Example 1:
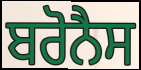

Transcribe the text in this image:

ਬਰੋਨੈਸ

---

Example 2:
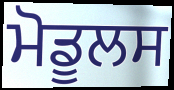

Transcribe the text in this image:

ਮੋਡੂਲਸ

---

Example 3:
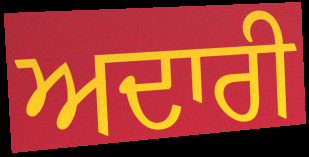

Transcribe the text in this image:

ਅਦਾਰੀ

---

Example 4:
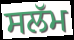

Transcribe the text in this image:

ਸਲੱਮ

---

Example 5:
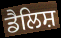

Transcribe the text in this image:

ਡੈਲਿਸ਼